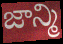
జాన్మి